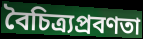
বৈচিত্র্যপ্রবণতা